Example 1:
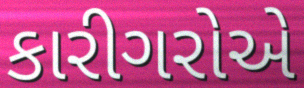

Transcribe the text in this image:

કારીગરોએ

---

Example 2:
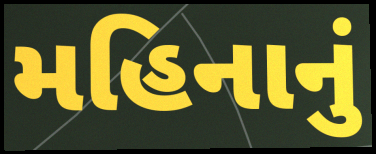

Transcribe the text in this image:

મહિનાનું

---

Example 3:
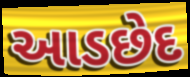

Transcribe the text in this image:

આડછેદ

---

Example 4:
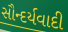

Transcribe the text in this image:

સૌન્દર્યવાદી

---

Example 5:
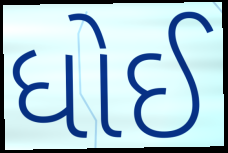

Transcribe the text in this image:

ધોઈ